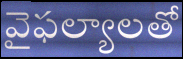
వైఫల్యాలతో